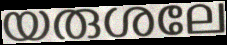
യരുശലേ